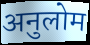
अनुलोम